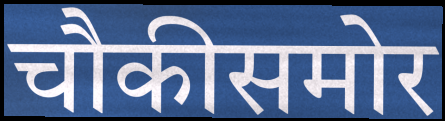
चौकीसमोर